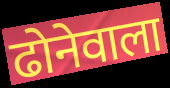
ढोनेवाला